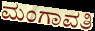
ಮಂಗಾವತಿ